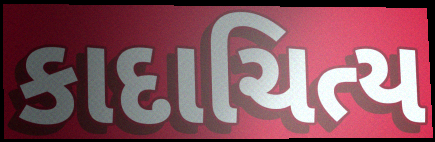
કાદાચિત્ય